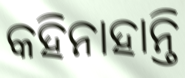
କହିନାହାନ୍ତି